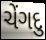
ચેંગદુ